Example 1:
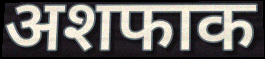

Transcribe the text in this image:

अशफाक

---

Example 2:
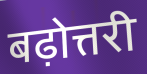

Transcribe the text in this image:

बढ़ोत्तरी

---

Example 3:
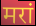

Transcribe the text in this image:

मरां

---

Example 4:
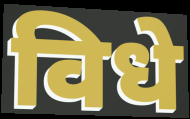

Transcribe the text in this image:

विधे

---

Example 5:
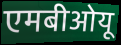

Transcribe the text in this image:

एमबीओयू